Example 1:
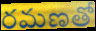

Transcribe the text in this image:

రమణతో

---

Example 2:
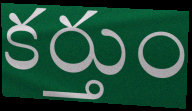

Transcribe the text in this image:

కర్తుం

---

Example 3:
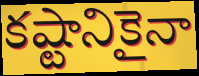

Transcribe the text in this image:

కష్టానికైనా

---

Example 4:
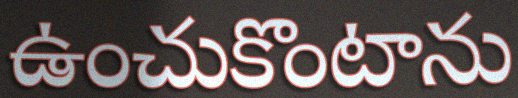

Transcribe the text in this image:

ఉంచుకొంటాను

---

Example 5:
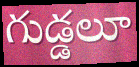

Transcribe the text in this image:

గుడ్డలూ